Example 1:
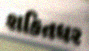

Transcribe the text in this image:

શકિતધર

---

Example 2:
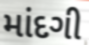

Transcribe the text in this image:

માંદગી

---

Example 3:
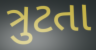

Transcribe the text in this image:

ત્રુટતા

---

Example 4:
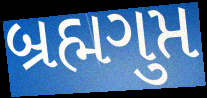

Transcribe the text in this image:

બ્રહ્મગુપ્ત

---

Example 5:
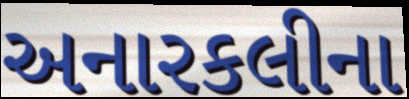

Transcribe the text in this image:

અનારકલીના